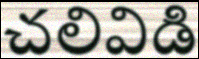
చలివిడి